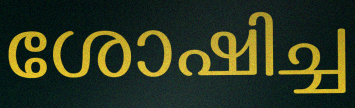
ശോഷിച്ച